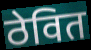
ठेवित